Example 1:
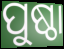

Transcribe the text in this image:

ପୁଷ୍ଠା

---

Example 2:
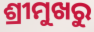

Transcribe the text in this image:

ଶ୍ରୀମୁଖରୁ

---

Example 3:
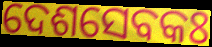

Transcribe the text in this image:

ଦେଶସେବକଃ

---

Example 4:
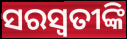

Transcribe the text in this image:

ସରସ୍ୱତୀଙ୍କି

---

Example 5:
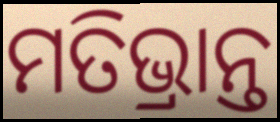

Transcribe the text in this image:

ମତିଭ୍ରାନ୍ତ